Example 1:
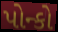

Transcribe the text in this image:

પોન્કો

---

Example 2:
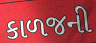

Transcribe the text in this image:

કાળજની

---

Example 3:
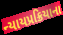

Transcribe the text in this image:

ન્યાયપ્રક્રિયાના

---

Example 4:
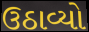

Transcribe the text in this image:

ઉઠાવ્યો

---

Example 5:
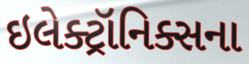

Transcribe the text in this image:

ઇલેક્ટ્રૉનિક્સના